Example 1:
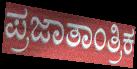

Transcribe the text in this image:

ಪ್ರಜಾತಾಂತ್ರಿಕ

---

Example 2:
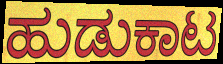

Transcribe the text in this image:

ಹುಡುಕಾಟ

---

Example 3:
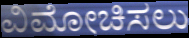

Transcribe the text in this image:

ವಿಮೋಚಿಸಲು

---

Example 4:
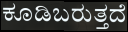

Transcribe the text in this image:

ಕೂಡಿಬರುತ್ತದೆ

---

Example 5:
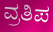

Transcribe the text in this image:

ವ್ರತಿಪ